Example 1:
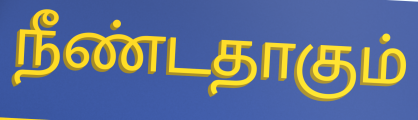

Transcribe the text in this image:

நீண்டதாகும்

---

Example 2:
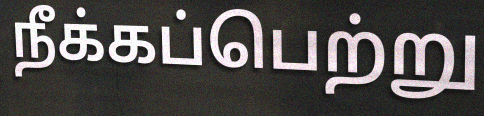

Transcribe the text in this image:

நீக்கப்பெற்று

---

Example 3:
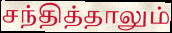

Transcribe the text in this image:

சந்தித்தாலும்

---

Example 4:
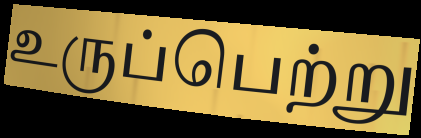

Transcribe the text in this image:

உருப்பெற்று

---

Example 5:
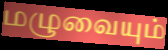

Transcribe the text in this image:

மழுவையும்